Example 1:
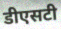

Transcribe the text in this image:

डीएसटी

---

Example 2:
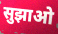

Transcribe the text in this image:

सुझाओ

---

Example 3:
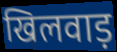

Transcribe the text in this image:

खिलवाड़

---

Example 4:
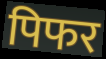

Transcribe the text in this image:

पिफर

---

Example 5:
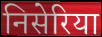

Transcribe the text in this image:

निसेरिया